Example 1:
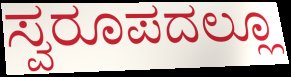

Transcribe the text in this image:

ಸ್ವರೂಪದಲ್ಲೂ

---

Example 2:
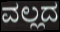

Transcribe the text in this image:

ವಲ್ಲದ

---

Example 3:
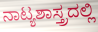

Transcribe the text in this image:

ನಾಟ್ಯಶಾಸ್ತ್ರದಲ್ಲಿ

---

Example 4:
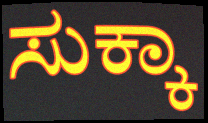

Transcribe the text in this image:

ಸುಕ್ಕಾ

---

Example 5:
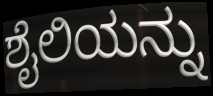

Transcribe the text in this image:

ಶೈಲಿಯನ್ನು